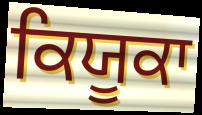
ਕਿਯੂਕਾ